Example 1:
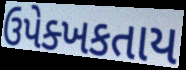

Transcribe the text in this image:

ઉપેક્ખકતાય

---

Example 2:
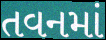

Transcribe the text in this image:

તવનમાં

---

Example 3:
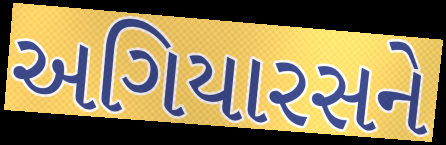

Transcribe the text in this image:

અગિયારસને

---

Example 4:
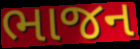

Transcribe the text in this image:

ભાજન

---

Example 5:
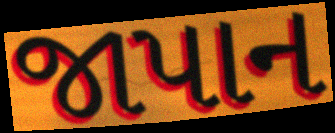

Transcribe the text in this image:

જાપાન